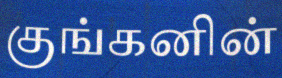
குங்கனின்